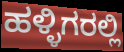
ಹಳ್ಳಿಗರಲ್ಲಿ